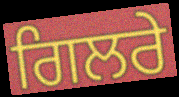
ਗਿਲਰੇ